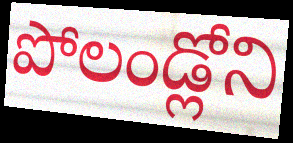
పోలండ్లోని